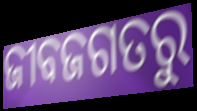
ଜୀବଜଗତରୁ